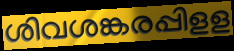
ശിവശങ്കരപ്പിളള